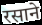
रसाने